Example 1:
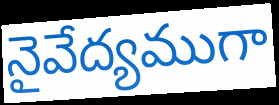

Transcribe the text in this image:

నైవేద్యముగా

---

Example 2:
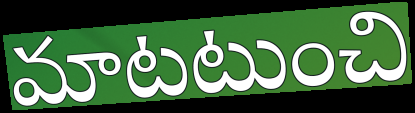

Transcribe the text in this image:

మాటటుంచి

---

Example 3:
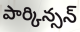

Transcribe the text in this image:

పార్కిన్సన్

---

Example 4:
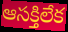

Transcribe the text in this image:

ఆసక్తిలేక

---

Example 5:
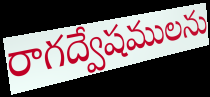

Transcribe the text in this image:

రాగద్వేషములను